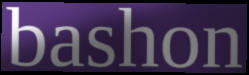
bashon